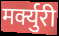
मर्क्युरी